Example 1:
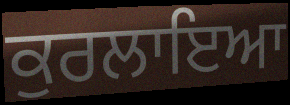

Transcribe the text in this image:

ਕੁਰਲਾਇਆ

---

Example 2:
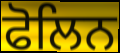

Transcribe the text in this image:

ਫੋਲਿਨ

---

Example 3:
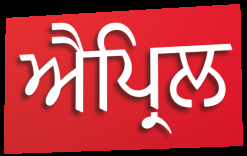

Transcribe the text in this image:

ਐਪ੍ਰਿਲ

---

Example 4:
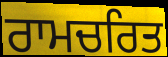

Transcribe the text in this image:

ਰਾਮਚਰਿਤ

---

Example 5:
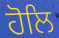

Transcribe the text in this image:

ਹੋਲਿ